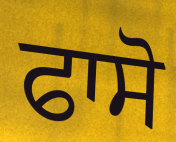
ਫਾਸੋ